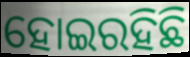
ହୋଇରହିଛି